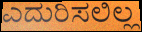
ಎದುರಿಸಲಿಲ್ಲ